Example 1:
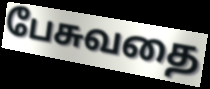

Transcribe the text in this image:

பேசுவதை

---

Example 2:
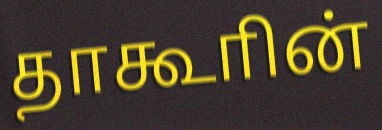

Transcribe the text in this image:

தாகூரின்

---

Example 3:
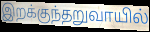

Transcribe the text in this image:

இறக்குந்தறுவாயில்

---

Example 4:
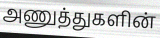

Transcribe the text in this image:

அணுத்துகளின்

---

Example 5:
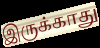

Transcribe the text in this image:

இருக்காது